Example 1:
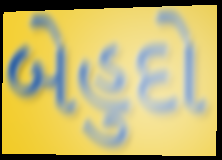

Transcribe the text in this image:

બેહુદો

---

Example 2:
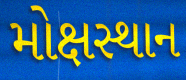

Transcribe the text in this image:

મોક્ષસ્થાન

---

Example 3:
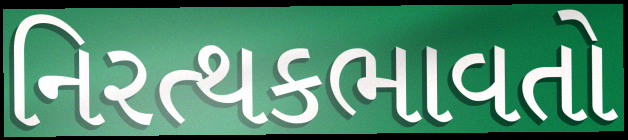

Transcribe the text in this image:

નિરત્થકભાવતો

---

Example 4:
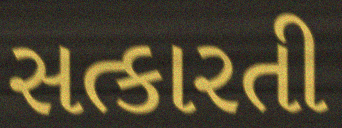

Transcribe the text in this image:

સત્કારતી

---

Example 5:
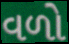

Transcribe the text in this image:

વળો